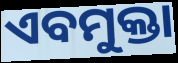
ଏବମୁକ୍ତା